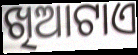
ଖିଆଟାଏ